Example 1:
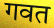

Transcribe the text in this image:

गवत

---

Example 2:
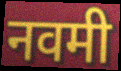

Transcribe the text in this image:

नवमी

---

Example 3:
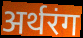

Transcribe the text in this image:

अर्थरंग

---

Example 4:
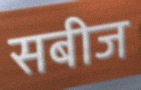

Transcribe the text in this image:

सबीज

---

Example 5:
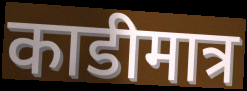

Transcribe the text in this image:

काडीमात्र